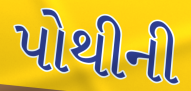
પોથીની